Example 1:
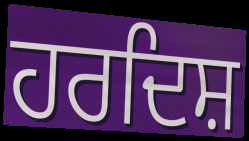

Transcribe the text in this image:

ਹਰਦਿਸ਼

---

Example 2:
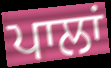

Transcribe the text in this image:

ਪਾਲਾਂ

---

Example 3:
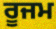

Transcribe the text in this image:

ਰੂਜਮ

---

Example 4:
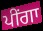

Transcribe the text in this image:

ਪੀਂਗਾ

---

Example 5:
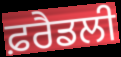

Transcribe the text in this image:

ਫ਼ਰੈਡਲੀ